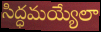
సిద్ధమయ్యేలా